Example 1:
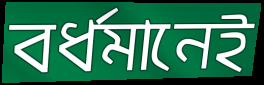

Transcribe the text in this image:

বর্ধমানেই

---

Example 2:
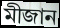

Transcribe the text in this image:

মীজান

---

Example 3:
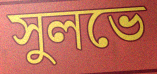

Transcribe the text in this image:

সুলভে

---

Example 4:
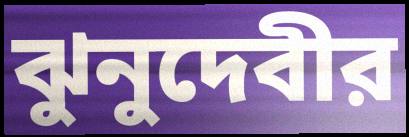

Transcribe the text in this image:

ঝুনুদেবীর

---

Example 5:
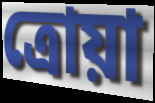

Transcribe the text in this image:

ত্রোয়া